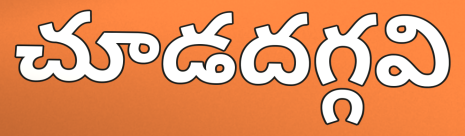
చూడదగ్గవి